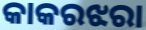
କାକରଝରା